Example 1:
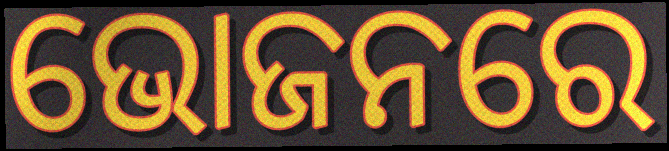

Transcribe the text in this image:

ଭୋଜନରେ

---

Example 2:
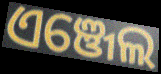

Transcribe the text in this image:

ଏଞ୍ଜେଲ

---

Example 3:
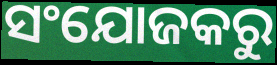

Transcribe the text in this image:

ସଂଯୋଜକରୁ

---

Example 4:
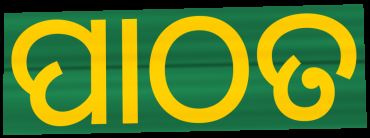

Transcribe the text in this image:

ପାଠତ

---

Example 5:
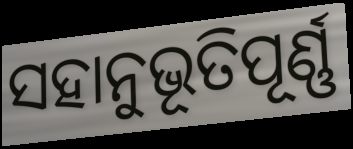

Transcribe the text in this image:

ସହାନୁଭୂତିପୂର୍ଣ୍ଣ